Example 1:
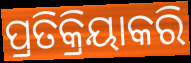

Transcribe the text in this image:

ପ୍ରତିକ୍ରିୟାକରି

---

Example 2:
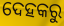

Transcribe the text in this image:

ଦେହକରୁ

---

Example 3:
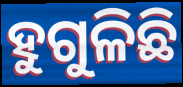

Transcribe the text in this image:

ହୁଗୁଳିଛି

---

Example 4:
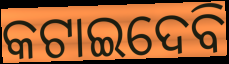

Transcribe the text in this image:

କଟାଇଦେବି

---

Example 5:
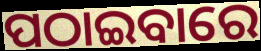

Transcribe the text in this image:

ପଠାଇବାରେ